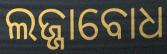
ଲଜ୍ଜାବୋଧ